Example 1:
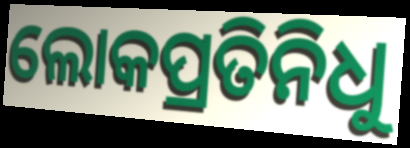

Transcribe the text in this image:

ଲୋକପ୍ରତିନିଧୁ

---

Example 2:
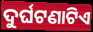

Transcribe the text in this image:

ଦୁର୍ଘଟଣାଟିଏ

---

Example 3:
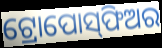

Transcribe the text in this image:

ଟ୍ରୋପୋସ୍‌ଫିଅର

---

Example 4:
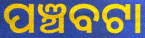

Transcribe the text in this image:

ପଞ୍ଚବଟା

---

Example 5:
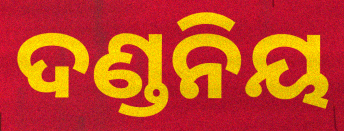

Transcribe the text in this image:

ଦଣ୍ଡନିୟ